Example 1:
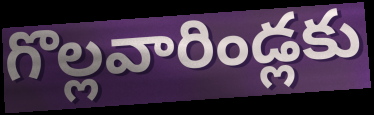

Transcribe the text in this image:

గొల్లవారిండ్లకు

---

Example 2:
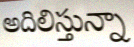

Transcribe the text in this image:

అదిలిస్తున్నా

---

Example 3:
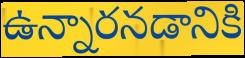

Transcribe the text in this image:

ఉన్నారనడానికి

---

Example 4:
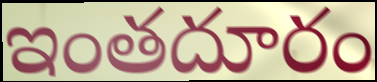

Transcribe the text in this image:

ఇంతదూరం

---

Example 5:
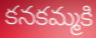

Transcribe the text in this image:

కనకమ్మకి